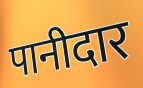
पानीदार